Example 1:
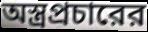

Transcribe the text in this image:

অস্ত্রপ্রচারের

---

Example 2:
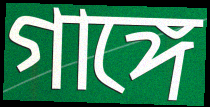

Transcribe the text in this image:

গাঙ্গে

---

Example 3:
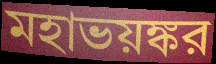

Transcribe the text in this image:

মহাভয়ঙ্কর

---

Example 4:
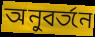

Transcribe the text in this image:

অনুবর্তনে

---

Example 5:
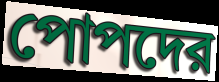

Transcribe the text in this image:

পোপদের